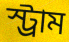
স্ট্রাম